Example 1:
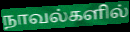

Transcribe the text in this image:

நாவல்களில்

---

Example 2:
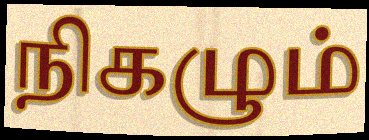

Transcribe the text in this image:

நிகழும்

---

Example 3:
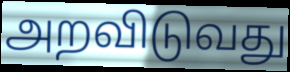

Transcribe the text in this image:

அறவிடுவது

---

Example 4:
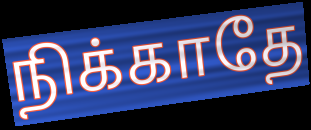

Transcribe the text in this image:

நிக்காதே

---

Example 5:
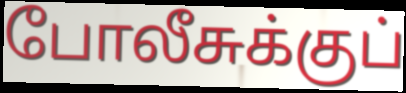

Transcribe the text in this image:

போலீசுக்குப்